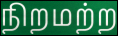
நிறமற்ற